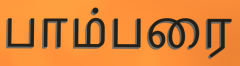
பாம்பரை